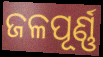
ଜଳପୂର୍ଣ୍ଣ